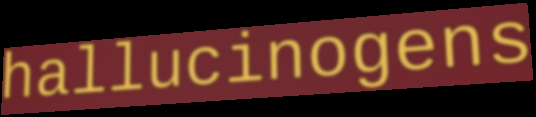
hallucinogens